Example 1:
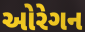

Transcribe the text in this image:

ઓરેગન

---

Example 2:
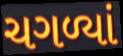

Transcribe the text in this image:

ચગળ્યાં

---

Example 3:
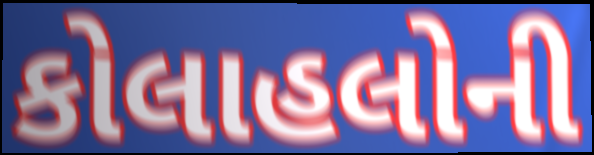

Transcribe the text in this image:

કોલાહલોની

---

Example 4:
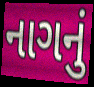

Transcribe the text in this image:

નાગનું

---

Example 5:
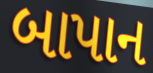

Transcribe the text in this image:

બાપાન